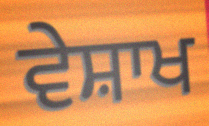
ਵੇਸ਼ਾਖ